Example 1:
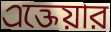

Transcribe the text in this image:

এক্তেয়ার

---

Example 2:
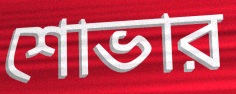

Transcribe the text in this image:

শোভার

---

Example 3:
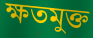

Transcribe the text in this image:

ক্ষতমুক্ত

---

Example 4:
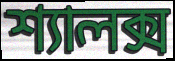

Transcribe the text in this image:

শ্যালক্স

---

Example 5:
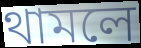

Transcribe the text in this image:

থামলে